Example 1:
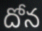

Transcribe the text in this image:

దోన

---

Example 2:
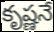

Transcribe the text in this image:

కృష్ణనే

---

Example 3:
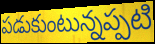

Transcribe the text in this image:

పడుకుంటున్నప్పటి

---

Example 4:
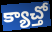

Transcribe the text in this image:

క్యాచ్తో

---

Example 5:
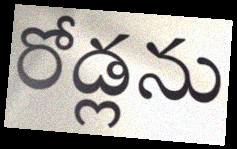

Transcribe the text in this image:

రోడ్లను